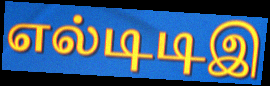
எல்டிடிஇ